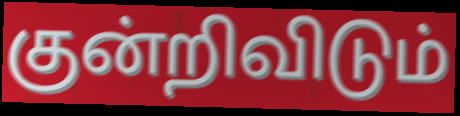
குன்றிவிடும்